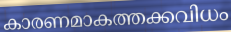
കാരണമാകത്തക്കവിധം